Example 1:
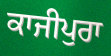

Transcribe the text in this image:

ਕਾਜੀਪੁਰਾ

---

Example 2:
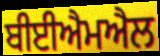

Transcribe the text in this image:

ਬੀਈਐਮਐਲ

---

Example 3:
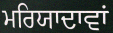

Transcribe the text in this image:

ਮਰਿਯਾਦਾਵਾਂ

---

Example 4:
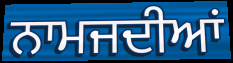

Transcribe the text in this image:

ਨਾਮਜਦੀਆਂ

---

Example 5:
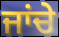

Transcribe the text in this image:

ਜਾਂਚੇ